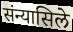
संन्यासिले